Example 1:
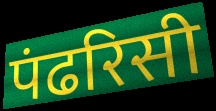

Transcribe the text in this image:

पंढरिसी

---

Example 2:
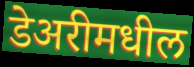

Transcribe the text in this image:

डेअरीमधील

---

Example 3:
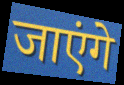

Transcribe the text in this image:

जाएंगे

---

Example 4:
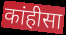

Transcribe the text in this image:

कांहीसा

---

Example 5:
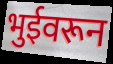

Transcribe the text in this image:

भुईवरून